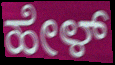
ಹೇಳ್